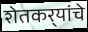
शेतकर्‍यांचे